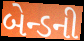
બેન્ડની